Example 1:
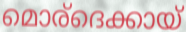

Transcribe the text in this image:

മൊര്ദെക്കായ്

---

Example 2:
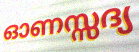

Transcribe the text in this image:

ഓണസ്സദ്യ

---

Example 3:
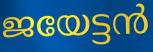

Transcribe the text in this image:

ജയേട്ടൻ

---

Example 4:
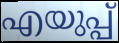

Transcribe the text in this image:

എയുപ്പ്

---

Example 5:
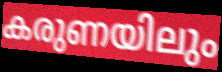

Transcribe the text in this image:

കരുണയിലും